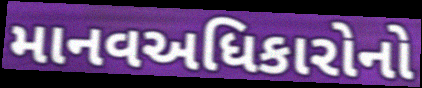
માનવઅધિકારોનો